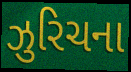
ઝુરિચના